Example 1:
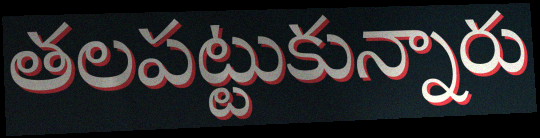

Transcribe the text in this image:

తలపట్టుకున్నారు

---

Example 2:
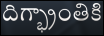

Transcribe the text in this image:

దిగ్భ్రాంతికి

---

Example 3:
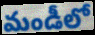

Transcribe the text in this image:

మండీలో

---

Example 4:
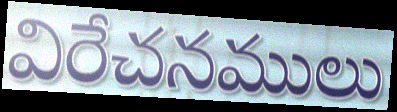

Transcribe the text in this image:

విరేచనములు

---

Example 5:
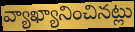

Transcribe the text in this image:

వ్యాఖ్యానించినట్లు